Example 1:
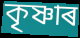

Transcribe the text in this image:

কৃষ্ণাৰ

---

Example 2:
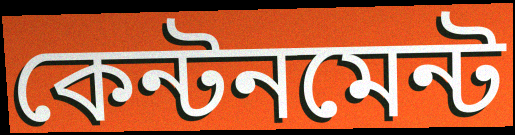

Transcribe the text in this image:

কেন্টনমেন্ট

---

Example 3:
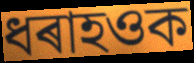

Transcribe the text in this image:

ধৰাহওক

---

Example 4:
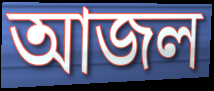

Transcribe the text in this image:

আজল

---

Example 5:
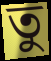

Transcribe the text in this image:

তু